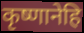
कृष्णानेहि